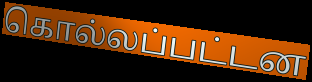
கொல்லப்பட்டன